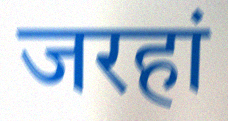
जरहां